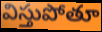
విస్తుపోతూ